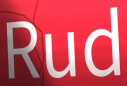
Rud